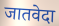
जातवेदा